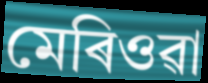
মেৰিওৱা